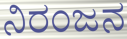
ನಿರಂಜನ